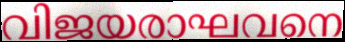
വിജയരാഘവനെ